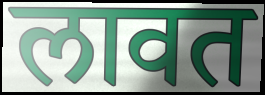
लावत